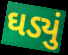
ઘડ્યું